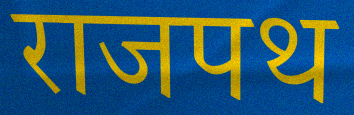
राजपथ